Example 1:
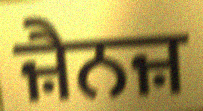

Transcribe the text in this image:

ਜ਼ੈਨਜ਼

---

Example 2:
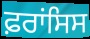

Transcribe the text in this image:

ਫ਼ਰਾਂਸਿਸ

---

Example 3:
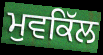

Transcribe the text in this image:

ਮੁਵਕਿੱਲ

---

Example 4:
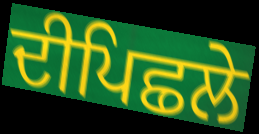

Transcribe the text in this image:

ਦੀਪਿਛਲੇ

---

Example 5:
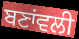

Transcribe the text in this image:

ਬਣਾਂਵਲੀ